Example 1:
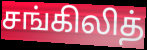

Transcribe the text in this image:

சங்கிலித்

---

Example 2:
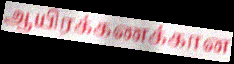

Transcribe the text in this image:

ஆயிரக்கணக்கான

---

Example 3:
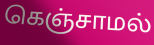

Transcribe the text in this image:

கெஞ்சாமல்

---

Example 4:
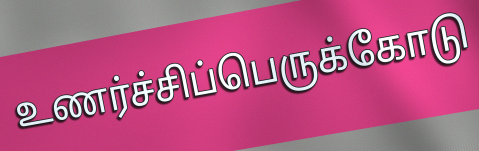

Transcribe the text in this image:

உணர்ச்சிப்பெருக்கோடு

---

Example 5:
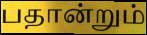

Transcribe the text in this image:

பதான்றும்